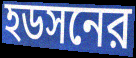
হডসনের